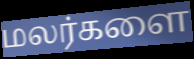
மலர்களை